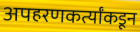
अपहरणकर्त्यांकडून